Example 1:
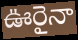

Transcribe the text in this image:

ఊరైనా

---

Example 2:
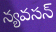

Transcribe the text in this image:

న్యవసన్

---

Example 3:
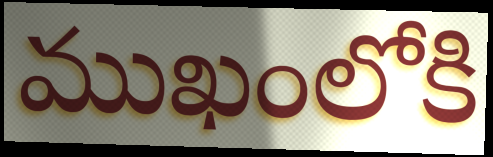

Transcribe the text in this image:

ముఖంలోకి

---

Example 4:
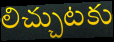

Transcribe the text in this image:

లిచ్చుటకు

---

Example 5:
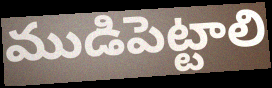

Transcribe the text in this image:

ముడిపెట్టాలి